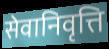
सेवानिवृत्ति